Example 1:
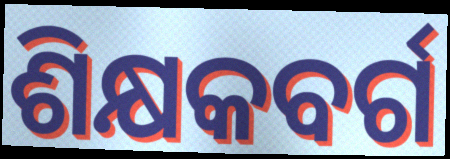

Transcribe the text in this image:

ଶିକ୍ଷକବର୍ଗ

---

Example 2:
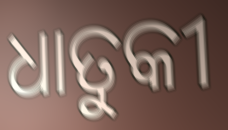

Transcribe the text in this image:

ଧାତୁକୀ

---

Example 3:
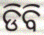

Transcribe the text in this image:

ଡିବି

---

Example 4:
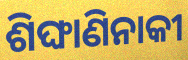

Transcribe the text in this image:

ଶିଙ୍ଘାଣିନାକୀ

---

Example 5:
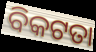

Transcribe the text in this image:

ବିକଟତା